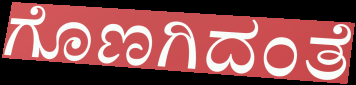
ಗೊಣಗಿದಂತೆ